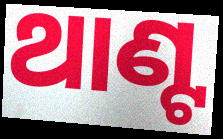
ଥାଣ୍ଟ